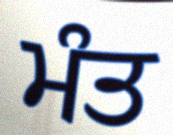
ਮੰਤ